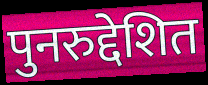
पुनरुद्देशित